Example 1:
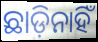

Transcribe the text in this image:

ଛାଡ଼ିନାହିଁ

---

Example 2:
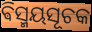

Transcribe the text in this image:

ଵିସ୍ମୟସୂଚକ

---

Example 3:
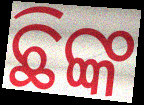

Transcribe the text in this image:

ଛିଙ୍କ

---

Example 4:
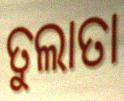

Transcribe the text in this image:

ତୁଲାତା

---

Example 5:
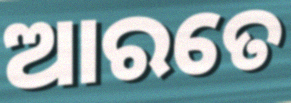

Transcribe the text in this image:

ଆରତେ